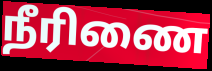
நீரிணை